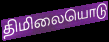
திமிலையொடு